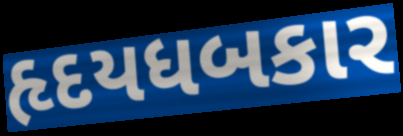
હૃદયધબકાર